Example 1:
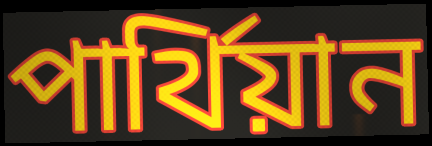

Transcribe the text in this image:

পার্থিয়ান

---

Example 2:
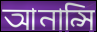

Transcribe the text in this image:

আনান্সি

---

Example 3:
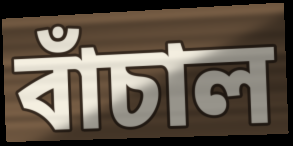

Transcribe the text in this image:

বাঁচাল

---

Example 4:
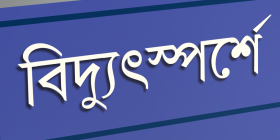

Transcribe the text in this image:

বিদ্যুৎস্পর্শে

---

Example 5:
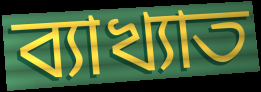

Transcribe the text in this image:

ব্যাখ্যাত